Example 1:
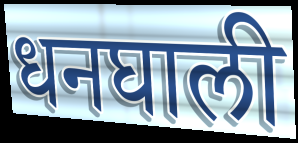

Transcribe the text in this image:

धनघाली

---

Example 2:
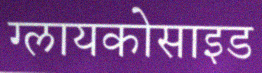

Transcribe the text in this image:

ग्लायकोसाइड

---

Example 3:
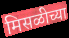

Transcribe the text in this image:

मिसळीच्या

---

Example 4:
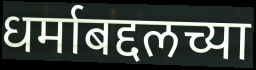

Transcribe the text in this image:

धर्माबद्दलच्या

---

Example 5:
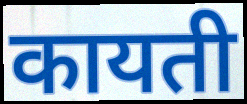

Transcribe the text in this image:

कायती